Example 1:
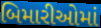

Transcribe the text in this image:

બિમારીઓમાં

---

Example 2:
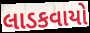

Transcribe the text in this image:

લાડકવાયો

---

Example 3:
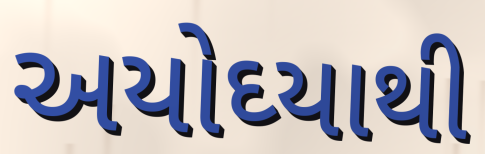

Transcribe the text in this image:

અયોઘ્યાથી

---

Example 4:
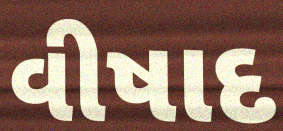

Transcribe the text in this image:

વીષાદ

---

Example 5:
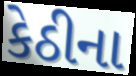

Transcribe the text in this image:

કેઠીના